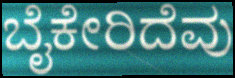
ಬೈಕೇರಿದೆವು